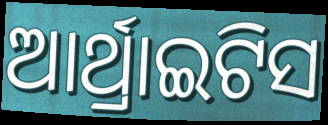
ଆର୍ଥ୍ରାଇଟିସ